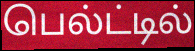
பெல்ட்டில்